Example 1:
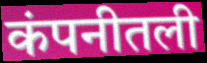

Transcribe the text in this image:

कंपनीतली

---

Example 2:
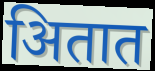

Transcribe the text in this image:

अितात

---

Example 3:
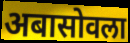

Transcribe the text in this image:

अबासोवला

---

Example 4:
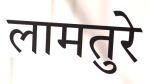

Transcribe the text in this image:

लामतुरे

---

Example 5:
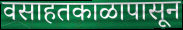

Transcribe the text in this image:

वसाहतकाळापासून